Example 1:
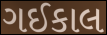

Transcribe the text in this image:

ગઈકાલ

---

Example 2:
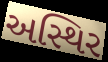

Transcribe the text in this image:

અસ્થિર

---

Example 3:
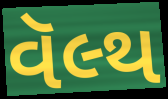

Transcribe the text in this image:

વૅલ્થ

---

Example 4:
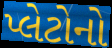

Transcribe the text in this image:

પ્લેટોનો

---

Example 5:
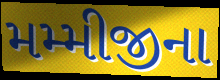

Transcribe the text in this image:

મમ્મીજીના